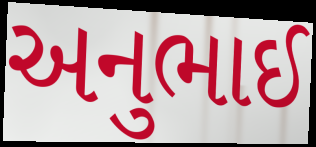
અનુભાઈ